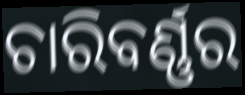
ଚାରିବର୍ଣ୍ଣର